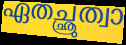
ഏതച്ഛ്രുത്വാ